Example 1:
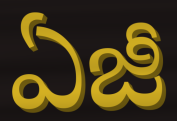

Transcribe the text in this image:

ఏజీ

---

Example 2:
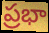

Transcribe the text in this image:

ప్రభా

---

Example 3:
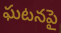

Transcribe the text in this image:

ఘటనపై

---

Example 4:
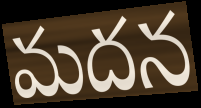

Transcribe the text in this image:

మదన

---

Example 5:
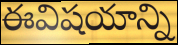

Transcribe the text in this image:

ఈవిషయాన్ని